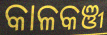
କାଳକଞ୍ଜ